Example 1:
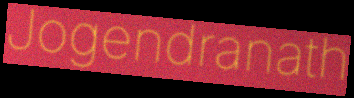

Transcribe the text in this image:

Jogendranath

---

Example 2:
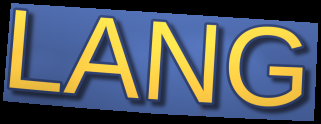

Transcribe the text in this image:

LANG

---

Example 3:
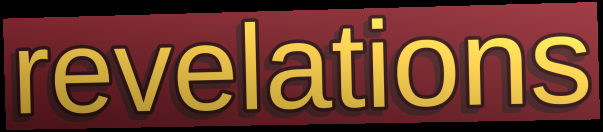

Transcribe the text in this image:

revelations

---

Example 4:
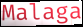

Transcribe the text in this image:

Malaga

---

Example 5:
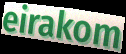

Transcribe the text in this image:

eirakom